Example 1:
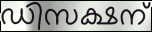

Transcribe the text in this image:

ഡിസക്ഷന്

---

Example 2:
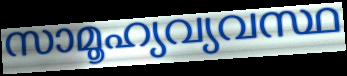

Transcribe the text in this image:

സാമൂഹ്യവ്യവസ്ഥ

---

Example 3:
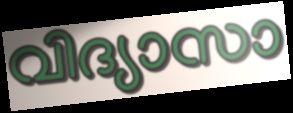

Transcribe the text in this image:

വിദ്യാസാ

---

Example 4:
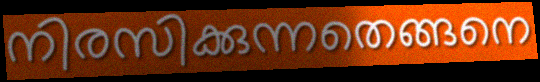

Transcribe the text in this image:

നിരസിക്കുന്നതെങ്ങനെ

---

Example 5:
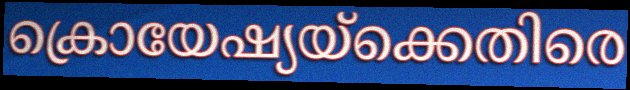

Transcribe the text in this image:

ക്രൊയേഷ്യയ്ക്കെതിരെ